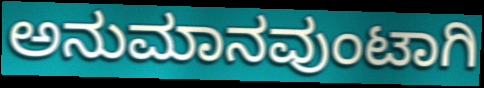
ಅನುಮಾನವುಂಟಾಗಿ